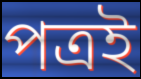
পত্ৰই